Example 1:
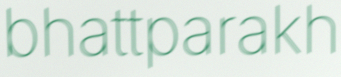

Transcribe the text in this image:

bhattparakh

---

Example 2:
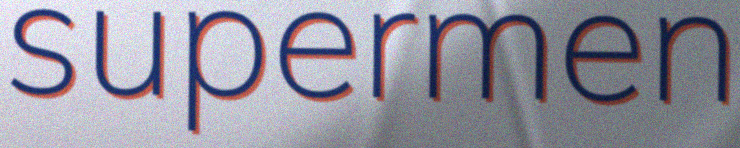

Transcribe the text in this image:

supermen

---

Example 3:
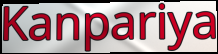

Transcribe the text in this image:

Kanpariya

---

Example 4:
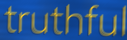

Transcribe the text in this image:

truthful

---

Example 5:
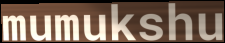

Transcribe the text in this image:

mumukshu